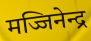
मज्जिनेन्द्र